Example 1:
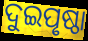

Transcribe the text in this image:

ଦୁଇପୃଷ୍ଠା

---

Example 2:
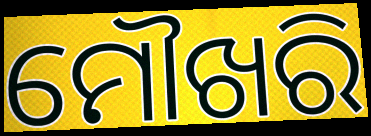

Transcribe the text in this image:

ମୌଖରି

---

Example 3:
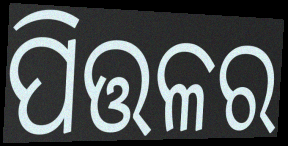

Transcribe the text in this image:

ପିତ୍ତଳର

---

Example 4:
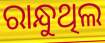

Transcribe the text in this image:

ରାନ୍ଧୁଥିଲ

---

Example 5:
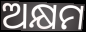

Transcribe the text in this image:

ଅକ୍ଷମ